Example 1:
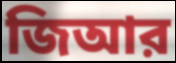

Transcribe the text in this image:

জিআর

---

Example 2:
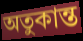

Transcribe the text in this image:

অতুকান্ত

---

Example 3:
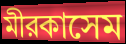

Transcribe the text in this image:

মীরকাসেম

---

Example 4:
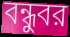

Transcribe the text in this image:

বন্ধুবর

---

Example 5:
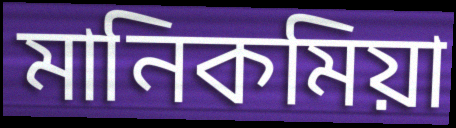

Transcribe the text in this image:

মানিকমিয়া